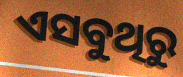
ଏସବୁଥିରୁ